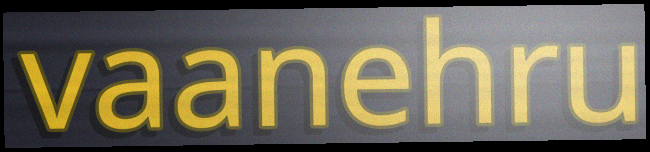
vaanehru